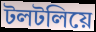
টলটলিয়ে